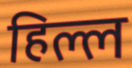
हिल्ल